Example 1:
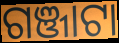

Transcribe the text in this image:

ଗଞ୍ଜାଟା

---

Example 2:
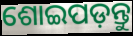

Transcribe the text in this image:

ଶୋଇପଡ଼ନ୍ତୁ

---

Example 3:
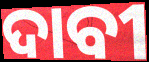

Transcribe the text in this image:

ଦାବୀ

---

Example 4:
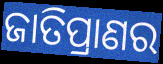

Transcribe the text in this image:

ଜାତିପ୍ରାଣର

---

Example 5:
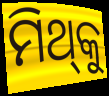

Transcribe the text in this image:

ମିଥ୍‍କୁ